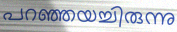
പറഞ്ഞയച്ചിരുന്നു